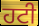
ਹਟੀ